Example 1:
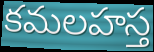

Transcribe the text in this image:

కమలహస్త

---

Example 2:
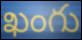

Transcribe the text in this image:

ఖంగు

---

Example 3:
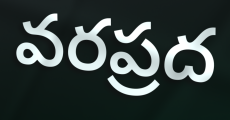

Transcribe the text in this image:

వరప్రద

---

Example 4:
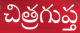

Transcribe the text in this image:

చిత్రగుప్త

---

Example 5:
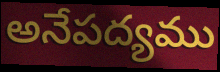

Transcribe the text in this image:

అనేపద్యము